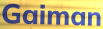
Gaiman